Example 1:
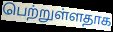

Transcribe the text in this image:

பெற்றுள்ளதாக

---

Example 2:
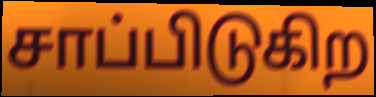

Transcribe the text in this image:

சாப்பிடுகிற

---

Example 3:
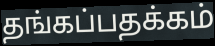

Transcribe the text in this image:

தங்கப்பதக்கம்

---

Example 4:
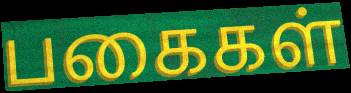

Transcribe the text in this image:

பகைகள்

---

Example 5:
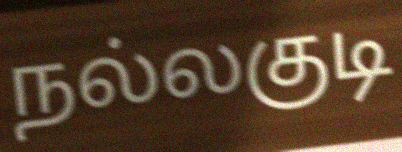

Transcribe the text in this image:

நல்லகுடி